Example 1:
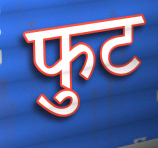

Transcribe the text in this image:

फुट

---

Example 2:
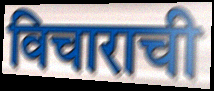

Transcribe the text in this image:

विचाराची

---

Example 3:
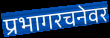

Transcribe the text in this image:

प्रभागरचनेवर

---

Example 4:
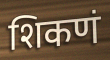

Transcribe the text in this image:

शिकणं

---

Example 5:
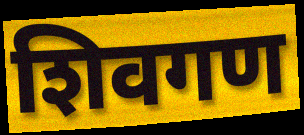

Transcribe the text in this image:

शिवगण